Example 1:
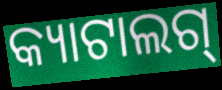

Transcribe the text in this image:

କ୍ୟାଟାଲଗ୍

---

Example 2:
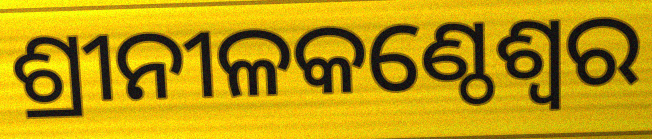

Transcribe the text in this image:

ଶ୍ରୀନୀଳକଣ୍ଠେଶ୍ଵର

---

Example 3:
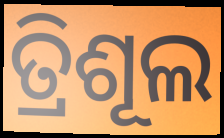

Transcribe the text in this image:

ତ୍ରିଶୂଲ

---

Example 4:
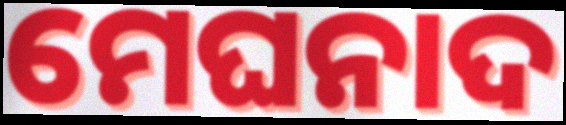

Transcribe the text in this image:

ମେଘନାଦ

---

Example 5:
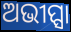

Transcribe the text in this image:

ଅଭୀପ୍ସା